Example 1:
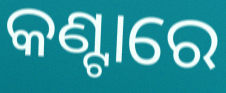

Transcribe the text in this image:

କଣ୍ଟାରେ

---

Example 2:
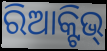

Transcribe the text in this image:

ରିଆକ୍ଟିଭ୍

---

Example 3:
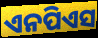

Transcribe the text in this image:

ଏନପିଏସ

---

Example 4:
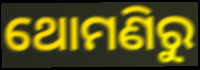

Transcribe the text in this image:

ଥୋମଣିରୁ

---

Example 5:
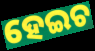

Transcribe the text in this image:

ହେଇଚ